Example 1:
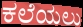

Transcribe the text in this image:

ಕಲೆಯಲು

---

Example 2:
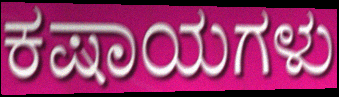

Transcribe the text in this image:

ಕಷಾಯಗಳು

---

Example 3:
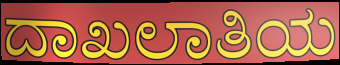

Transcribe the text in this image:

ದಾಖಲಾತಿಯ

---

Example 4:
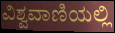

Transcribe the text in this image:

ವಿಶ್ವವಾಣಿಯಲ್ಲಿ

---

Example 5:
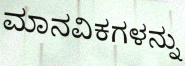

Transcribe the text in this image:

ಮಾನವಿಕಗಳನ್ನು